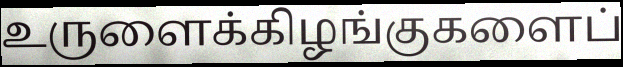
உருளைக்கிழங்குகளைப்